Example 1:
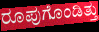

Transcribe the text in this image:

ರೂಪುಗೊಂಡಿತ್ತು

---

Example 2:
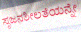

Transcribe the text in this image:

ಸೃಜನಶೀಲತೆಯನ್ನೇ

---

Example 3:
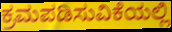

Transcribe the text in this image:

ಕ್ರಮಪಡಿಸುವಿಕೆಯಲ್ಲಿ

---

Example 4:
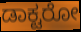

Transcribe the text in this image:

ಡಾಕ್ಟರೋ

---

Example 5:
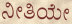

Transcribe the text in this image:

ನೀತಿಯೇ